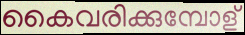
കൈവരിക്കുമ്പോള്